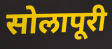
सोलापूरी